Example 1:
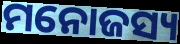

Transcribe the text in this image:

ମନୋଜସ୍ୟ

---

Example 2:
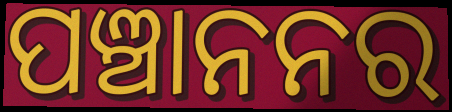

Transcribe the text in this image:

ପଞ୍ଚାନନର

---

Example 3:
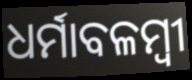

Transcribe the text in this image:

ଧର୍ମାବଳମ୍ବୀ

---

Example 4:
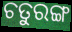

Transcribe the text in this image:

ଚତୁରଙ୍ଗ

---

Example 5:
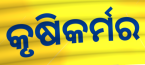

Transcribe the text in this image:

କୃଷିକର୍ମର